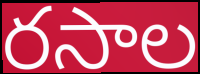
రసాల